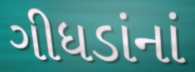
ગીધડાંનાં